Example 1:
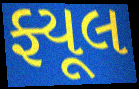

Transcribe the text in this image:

ફ્યૂલ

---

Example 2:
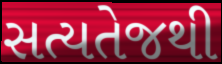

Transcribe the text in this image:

સત્યતેજથી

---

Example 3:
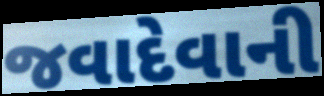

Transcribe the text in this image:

જવાદેવાની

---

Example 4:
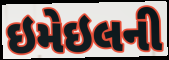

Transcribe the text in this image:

ઇમેઇલની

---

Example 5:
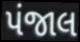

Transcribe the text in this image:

પંજાલ